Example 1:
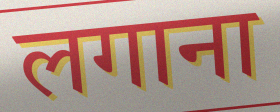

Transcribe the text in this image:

लगाना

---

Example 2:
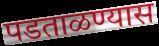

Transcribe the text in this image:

पडताळण्यास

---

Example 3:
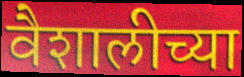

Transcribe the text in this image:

वैशालीच्या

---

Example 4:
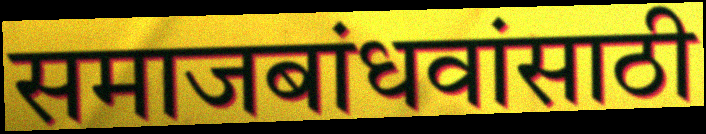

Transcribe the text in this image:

समाजबांधवांसाठी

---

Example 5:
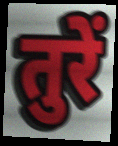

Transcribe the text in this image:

तुरें